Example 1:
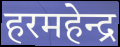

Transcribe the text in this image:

हरमहेन्द्र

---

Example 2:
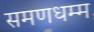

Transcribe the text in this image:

समणधम्म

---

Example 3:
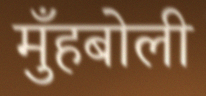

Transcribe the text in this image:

मुँहबोली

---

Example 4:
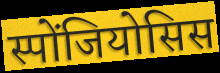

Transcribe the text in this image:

स्पोंजियोसिस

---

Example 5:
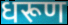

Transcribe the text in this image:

धरूण